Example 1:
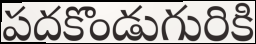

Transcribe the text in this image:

పదకొండుగురికి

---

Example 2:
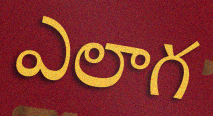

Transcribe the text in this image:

ఎలాగ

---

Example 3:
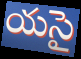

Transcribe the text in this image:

యసై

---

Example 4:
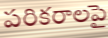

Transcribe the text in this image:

పరికరాలపై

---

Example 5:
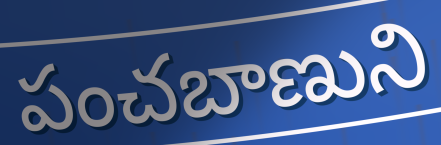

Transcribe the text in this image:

పంచబాణుని